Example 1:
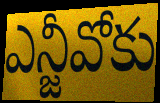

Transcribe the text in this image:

ఎన్జీవోకు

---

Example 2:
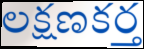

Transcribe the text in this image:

లక్షణకర్త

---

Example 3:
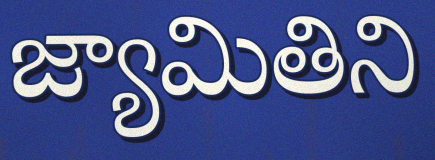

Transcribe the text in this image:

జ్యామితిని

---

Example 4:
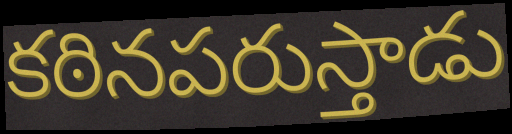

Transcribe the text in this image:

కఠినపరుస్తాడు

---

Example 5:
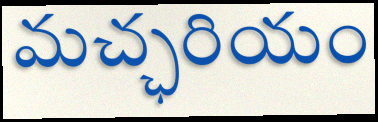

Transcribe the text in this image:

మచ్ఛరియం